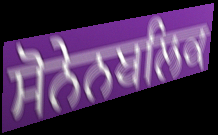
ਸੋਨੇਨਬਲਿਕ